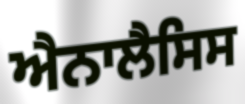
ਐਨਾਲੈਸਿਸ